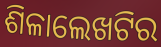
ଶିଳାଲେଖଟିର